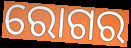
ରୋଗର